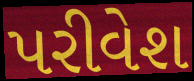
પરીવેશ